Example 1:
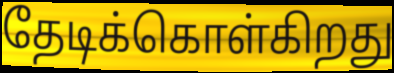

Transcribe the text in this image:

தேடிக்கொள்கிறது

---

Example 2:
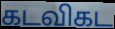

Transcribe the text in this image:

கடவிகட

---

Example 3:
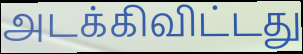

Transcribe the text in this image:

அடக்கிவிட்டது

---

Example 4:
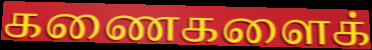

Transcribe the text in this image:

கணைகளைக்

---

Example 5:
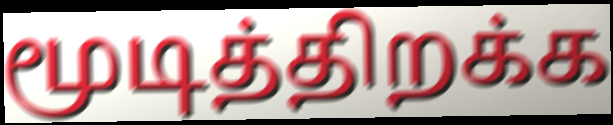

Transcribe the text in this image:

மூடித்திறக்க